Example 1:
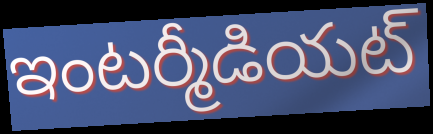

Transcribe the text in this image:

ఇంటర్మీడియట్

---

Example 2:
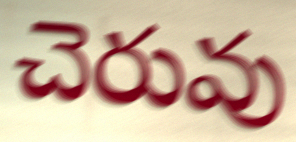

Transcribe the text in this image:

చెరువు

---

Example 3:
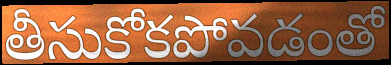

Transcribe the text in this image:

తీసుకోకపోవడంతో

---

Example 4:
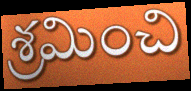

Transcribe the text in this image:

శ్రమించి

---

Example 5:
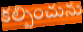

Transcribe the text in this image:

కల్పించును